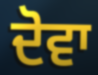
ਦੋਵਾ